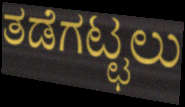
ತಡೆಗಟ್ಟಲು